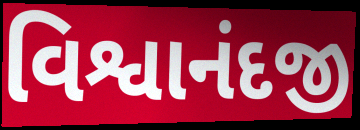
વિશ્વાનંદજી